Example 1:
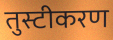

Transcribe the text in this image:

तुस्टीकरण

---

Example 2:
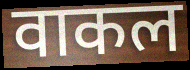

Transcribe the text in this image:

वाकल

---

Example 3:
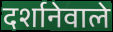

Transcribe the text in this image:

दर्शानेवाले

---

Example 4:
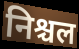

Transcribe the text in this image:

निश्चल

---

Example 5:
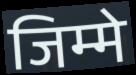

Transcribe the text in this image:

जिम्मे